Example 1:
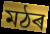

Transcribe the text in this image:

মঠৰ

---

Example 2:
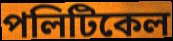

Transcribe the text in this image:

পলিটিকেল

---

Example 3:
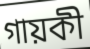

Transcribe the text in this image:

গায়কী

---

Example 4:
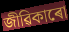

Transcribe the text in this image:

জীৱিকাৰো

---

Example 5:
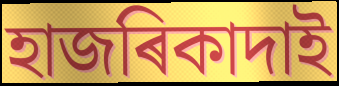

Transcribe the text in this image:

হাজৰিকাদাই